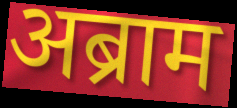
अब्राम